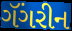
ગૅંગરીન